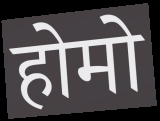
होमो